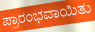
ಪ್ರಾರಂಭವಾಯಿತು